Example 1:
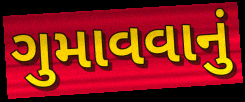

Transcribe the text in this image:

ગુમાવવાનું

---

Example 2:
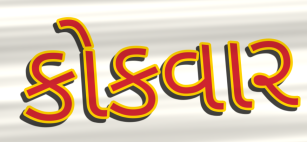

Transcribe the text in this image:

કોકવાર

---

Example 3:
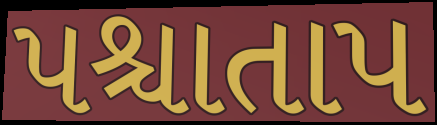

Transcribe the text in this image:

પશ્ચાતાપ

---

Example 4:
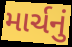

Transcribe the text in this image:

માર્ચનું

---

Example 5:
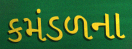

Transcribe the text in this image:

કમંડળના